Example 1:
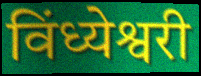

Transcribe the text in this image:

विंध्येश्वरी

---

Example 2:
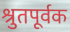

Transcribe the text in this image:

श्रुतपूर्वक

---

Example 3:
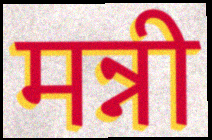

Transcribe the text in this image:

मन्नी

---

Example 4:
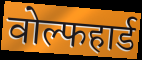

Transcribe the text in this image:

वोल्फहार्ड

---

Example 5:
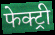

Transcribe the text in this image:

फेक्ट्री